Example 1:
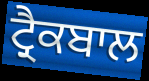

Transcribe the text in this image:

ਟ੍ਰੈਕਬਾਲ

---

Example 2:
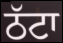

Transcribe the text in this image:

ਠੱਟਾ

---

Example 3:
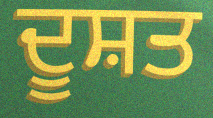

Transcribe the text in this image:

ਦੂਸ਼ਤ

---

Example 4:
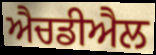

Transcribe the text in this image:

ਐਚਡੀਐਲ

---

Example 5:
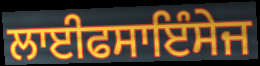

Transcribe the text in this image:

ਲਾਈਫਸਾਇੰਸੇਜ